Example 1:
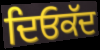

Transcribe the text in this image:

ਦਿਓਕੱਦ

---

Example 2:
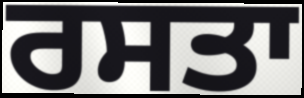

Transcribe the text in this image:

ਰਸਤਾ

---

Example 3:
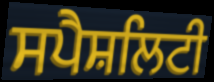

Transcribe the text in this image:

ਸਪੈਸ਼ਲਿਟੀ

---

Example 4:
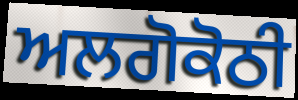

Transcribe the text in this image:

ਅਲਗੋਕੋਠੀ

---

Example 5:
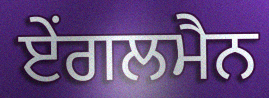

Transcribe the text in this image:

ਏਂਗਲਮੈਨ